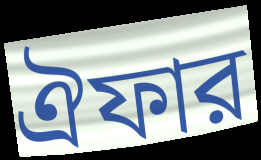
ঐফার